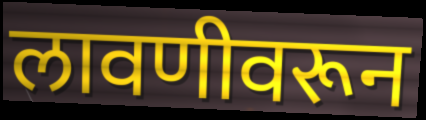
लावणीवरून